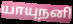
யாயுநனி